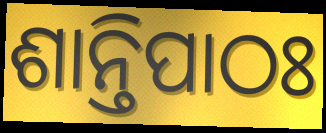
ଶାନ୍ତିପାଠଃ